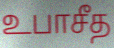
உபாசீத